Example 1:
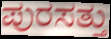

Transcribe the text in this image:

ಪುರಸತ್ತು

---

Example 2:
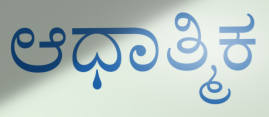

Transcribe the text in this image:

ಆಧಾತ್ಮಿಕ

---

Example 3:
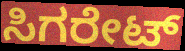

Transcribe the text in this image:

ಸಿಗರೇಟ್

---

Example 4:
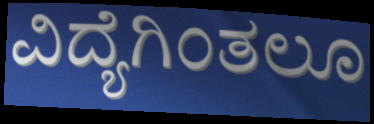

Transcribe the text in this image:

ವಿದ್ಯೆಗಿಂತಲೂ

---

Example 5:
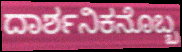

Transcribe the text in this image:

ದಾರ್ಶನಿಕನೊಬ್ಬ